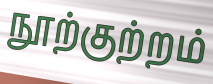
நூற்குற்றம்